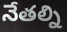
నేతల్ని